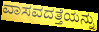
ವಾಸವದತ್ತೆಯನ್ನು